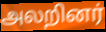
அலறினர்